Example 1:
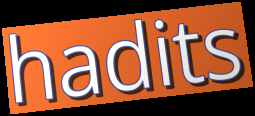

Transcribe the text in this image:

hadits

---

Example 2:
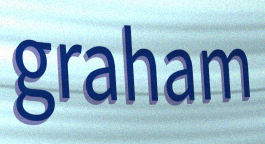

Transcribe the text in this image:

graham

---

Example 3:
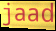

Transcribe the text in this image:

jaad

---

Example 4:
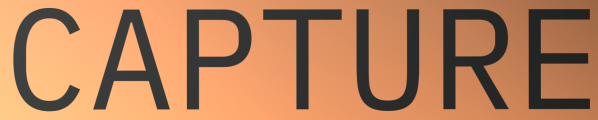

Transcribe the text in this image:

CAPTURE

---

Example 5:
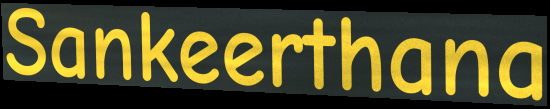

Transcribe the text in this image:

Sankeerthana